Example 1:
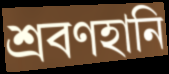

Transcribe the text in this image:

শ্রবণহানি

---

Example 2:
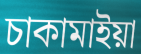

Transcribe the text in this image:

চাকামাইয়া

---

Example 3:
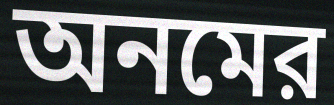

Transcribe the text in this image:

অনমের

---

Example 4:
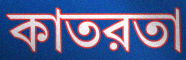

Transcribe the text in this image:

কাতরতা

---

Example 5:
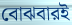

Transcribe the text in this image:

বোঝবারই